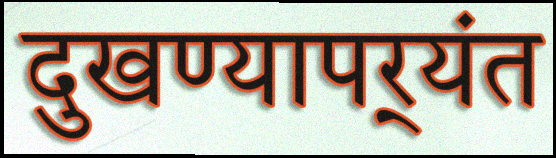
दुखण्यापर्यंत